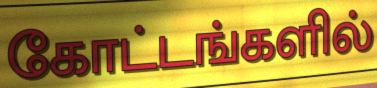
கோட்டங்களில்